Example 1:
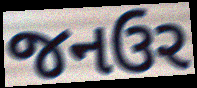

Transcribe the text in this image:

જનઉર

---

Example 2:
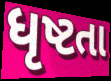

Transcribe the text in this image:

ધૃષ્ટતા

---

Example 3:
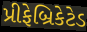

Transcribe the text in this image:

પ્રીફેબ્રિકેટેડ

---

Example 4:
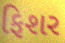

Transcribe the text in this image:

ફિશર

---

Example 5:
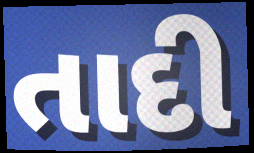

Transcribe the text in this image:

તાદી